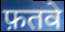
फ़तवे